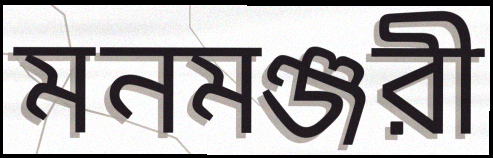
মনমঞ্জরী